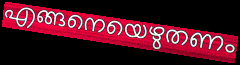
എങ്ങനെയെഴുതണം